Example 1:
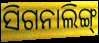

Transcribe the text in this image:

ସିଗନାଲିଙ୍ଗ୍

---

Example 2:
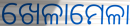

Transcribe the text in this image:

ଖେଳାମେଳା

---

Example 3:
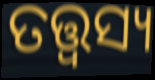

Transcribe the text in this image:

ତତ୍ତ୍ୱସ୍ୟ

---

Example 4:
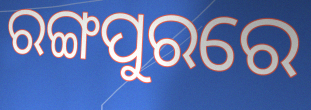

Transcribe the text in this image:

ରଙ୍ଗପୁରରେ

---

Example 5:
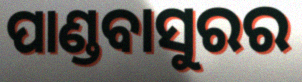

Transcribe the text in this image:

ପାଣ୍ଡବାସୁରର